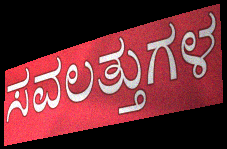
ಸವಲತ್ತುಗಳ